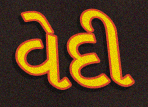
વેદી